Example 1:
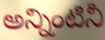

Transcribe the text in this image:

అన్నింటినీ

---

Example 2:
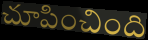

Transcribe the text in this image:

చూపించింది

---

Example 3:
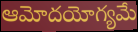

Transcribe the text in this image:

ఆమోదయోగ్యమే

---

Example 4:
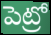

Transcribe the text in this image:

పెట్రో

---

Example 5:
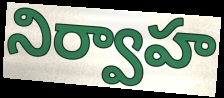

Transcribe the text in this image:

నిర్వాహ